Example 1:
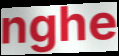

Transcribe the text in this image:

nghe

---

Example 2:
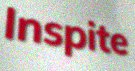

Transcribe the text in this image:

Inspite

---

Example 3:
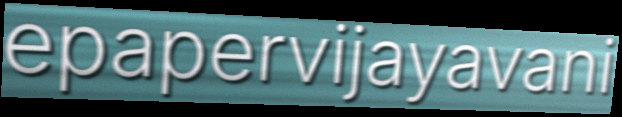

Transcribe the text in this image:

epapervijayavani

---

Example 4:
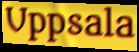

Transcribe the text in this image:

Uppsala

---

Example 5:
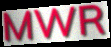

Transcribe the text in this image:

MWR